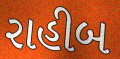
રાહીબ